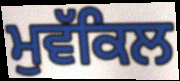
ਮੁਵੱਕਿਲ